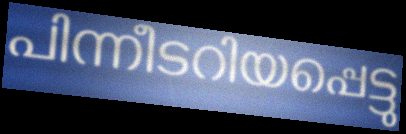
പിന്നീടറിയപ്പെട്ടു